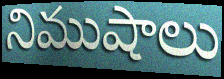
నిముషాలు